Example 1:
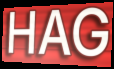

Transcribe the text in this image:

HAG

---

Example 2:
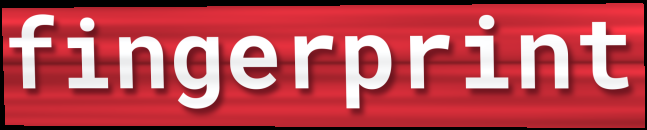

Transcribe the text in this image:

fingerprint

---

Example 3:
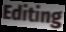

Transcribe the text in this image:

Editing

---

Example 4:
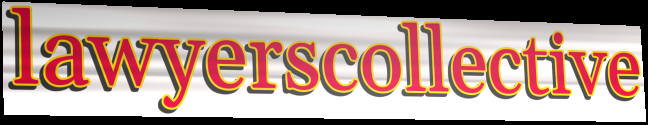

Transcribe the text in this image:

lawyerscollective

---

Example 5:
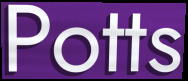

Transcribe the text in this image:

Potts